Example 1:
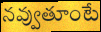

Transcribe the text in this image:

నవ్వుతూంటే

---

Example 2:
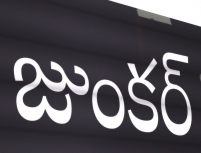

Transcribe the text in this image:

జుంకర్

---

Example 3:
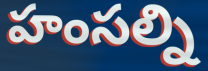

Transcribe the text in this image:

హంసల్ని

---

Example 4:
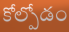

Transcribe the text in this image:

కోల్పోడం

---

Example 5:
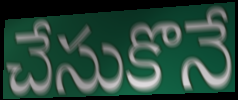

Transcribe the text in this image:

చేసుకొనే